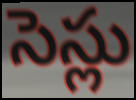
సెస్లు